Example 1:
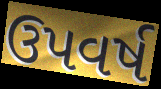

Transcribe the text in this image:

ઉપવર્ષ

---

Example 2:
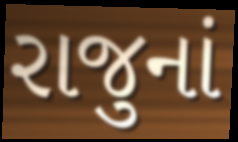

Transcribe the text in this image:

રાજુનાં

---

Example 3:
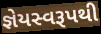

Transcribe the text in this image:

જ્ઞેયસ્વરૂપથી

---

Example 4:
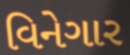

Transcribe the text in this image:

વિનેગાર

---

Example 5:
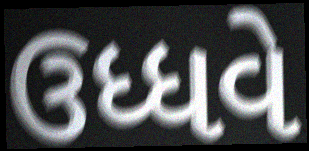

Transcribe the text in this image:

ઉધ્ધવે